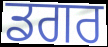
ਡਗਰ